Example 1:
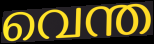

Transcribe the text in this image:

വെന്ത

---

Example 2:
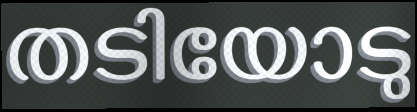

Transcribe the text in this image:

തടിയോടു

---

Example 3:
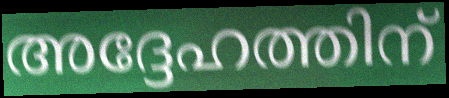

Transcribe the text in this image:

അദ്ദേഹത്തിന്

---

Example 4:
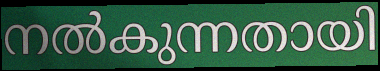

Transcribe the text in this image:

നൽകുന്നതായി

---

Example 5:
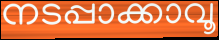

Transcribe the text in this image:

നടപ്പാക്കാവൂ